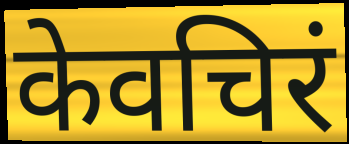
केवचिरं